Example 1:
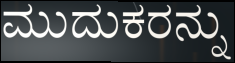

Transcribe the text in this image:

ಮುದುಕರನ್ನು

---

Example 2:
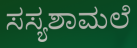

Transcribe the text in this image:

ಸಸ್ಯಶಾಮಲೆ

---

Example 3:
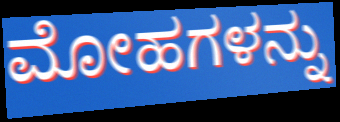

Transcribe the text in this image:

ಮೋಹಗಳನ್ನು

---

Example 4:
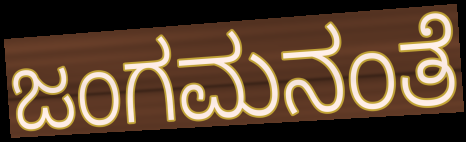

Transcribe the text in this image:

ಜಂಗಮನಂತೆ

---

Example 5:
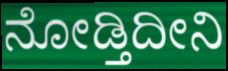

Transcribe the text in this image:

ನೋಡ್ತಿದೀನಿ